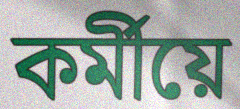
কৰ্মীয়ে